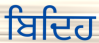
ਬਿਦਿਹ